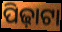
ପିଢ଼ାଟା